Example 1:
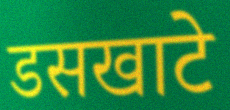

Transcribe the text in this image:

डसखाटे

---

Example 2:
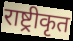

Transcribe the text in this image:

राष्ट्रीकृत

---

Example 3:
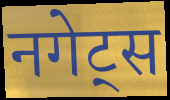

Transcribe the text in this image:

नगेट्स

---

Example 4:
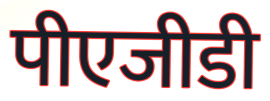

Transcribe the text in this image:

पीएजीडी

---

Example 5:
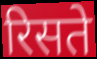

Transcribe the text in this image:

रिसते